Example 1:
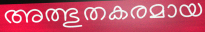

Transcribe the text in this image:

അത്ഭുതകരമായ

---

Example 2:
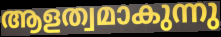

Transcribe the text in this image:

ആളത്വമാകുന്നു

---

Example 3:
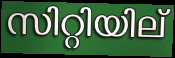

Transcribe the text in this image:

സിറ്റിയില്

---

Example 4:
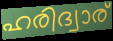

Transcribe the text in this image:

ഹരിദ്വാര്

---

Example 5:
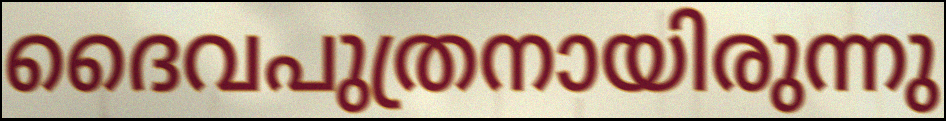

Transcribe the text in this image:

ദൈവപുത്രനായിരുന്നു